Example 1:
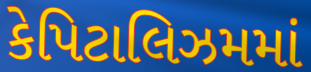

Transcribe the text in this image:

કેપિટાલિઝમમાં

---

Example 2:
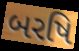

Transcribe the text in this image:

બરષિ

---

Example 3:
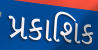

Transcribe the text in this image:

પ્રકાશિક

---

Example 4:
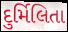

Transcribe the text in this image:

દુર્મિલિતા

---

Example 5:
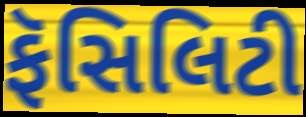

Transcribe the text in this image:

ફૅસિલિટી